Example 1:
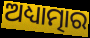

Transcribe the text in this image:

ଅଧ୍ୟାତ୍ମାର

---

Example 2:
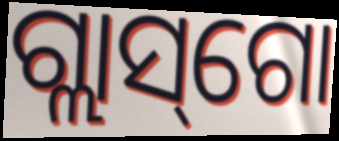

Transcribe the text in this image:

ଗ୍ଲାସ୍‌ଗୋ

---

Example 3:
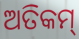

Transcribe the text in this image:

ଅତିକମ୍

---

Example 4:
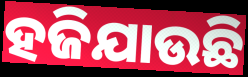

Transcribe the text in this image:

ହଜିଯାଉଛି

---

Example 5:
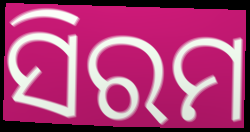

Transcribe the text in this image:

ସିରମ